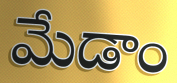
మేడాం